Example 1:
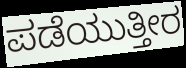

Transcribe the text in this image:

ಪಡೆಯುತ್ತೀರ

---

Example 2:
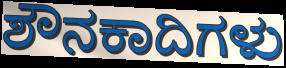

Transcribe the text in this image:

ಶೌನಕಾದಿಗಳು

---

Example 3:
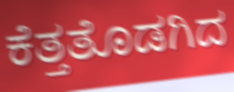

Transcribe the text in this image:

ಕೆತ್ತತೊಡಗಿದ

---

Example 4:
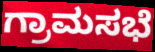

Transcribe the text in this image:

ಗ್ರಾಮಸಭೆ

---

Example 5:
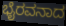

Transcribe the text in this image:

ಭೈರವನಾದ